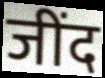
जींद